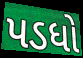
પડધો